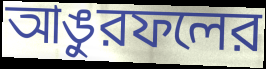
আঙুরফলের